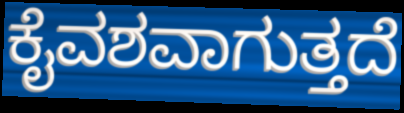
ಕೈವಶವಾಗುತ್ತದೆ